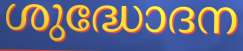
ശുദ്ധോദന